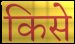
किसे